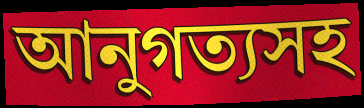
আনুগত্যসহ